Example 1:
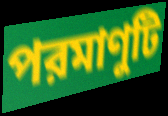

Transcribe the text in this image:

পরমাণুটি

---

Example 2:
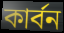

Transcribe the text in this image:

কার্বন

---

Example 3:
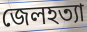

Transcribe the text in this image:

জেলহত্যা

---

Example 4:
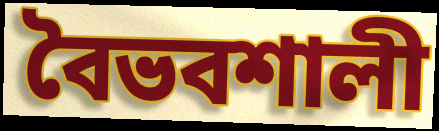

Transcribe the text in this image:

বৈভবশালী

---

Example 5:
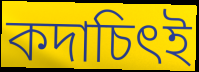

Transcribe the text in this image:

কদাচিৎই